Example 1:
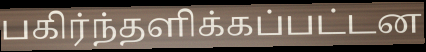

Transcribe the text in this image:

பகிர்ந்தளிக்கப்பட்டன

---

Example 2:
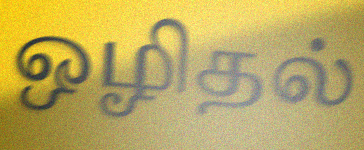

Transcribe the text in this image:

ஒழிதல்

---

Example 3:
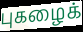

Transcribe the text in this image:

புகழைக்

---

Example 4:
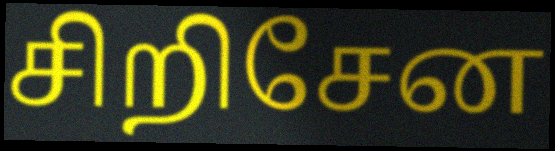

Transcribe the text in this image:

சிறிசேன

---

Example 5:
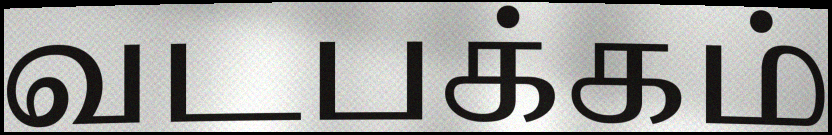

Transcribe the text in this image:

வடபக்கம்